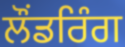
ਲੌਂਡਰਿੰਗ